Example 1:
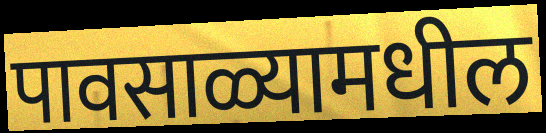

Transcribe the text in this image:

पावसाळ्यामधील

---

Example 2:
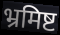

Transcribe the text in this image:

भ्रमिष्ट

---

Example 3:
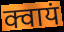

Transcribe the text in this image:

क्वायं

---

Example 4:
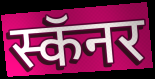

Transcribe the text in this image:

स्कॅनर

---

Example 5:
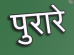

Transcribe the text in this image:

पुरारे